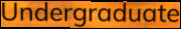
Undergraduate